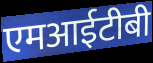
एमआईटीबी